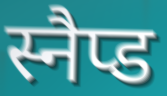
स्नैप्ड